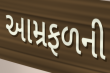
આમ્રફળની